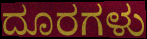
ದೂರಗಳು